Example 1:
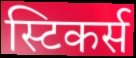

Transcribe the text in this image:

स्टिकर्स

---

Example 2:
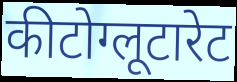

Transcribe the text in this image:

कीटोग्लूटारेट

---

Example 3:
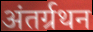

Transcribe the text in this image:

अंतर्ग्रथन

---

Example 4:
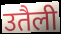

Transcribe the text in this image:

उतैली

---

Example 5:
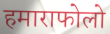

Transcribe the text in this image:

हमाराफोलो